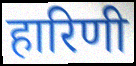
हारिणी